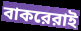
বাকরেরাই